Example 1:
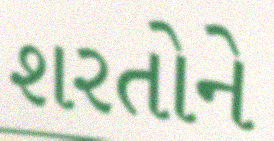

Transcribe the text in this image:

શરતોને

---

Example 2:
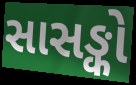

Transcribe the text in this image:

સાસઙ્કો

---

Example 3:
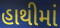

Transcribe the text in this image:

હાથીમાં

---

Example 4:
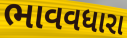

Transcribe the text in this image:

ભાવવધારા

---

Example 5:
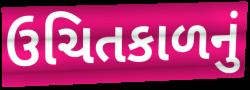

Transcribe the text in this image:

ઉચિતકાળનું